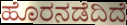
ಹೊರನಡೆದಿದೆ